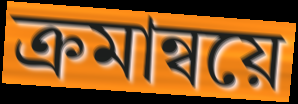
ক্রমান্বয়ে